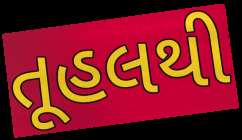
તૂહલથી